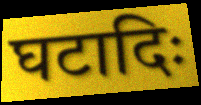
घटादिः